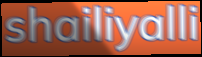
shailiyalli